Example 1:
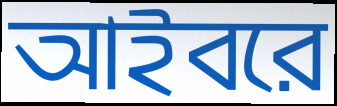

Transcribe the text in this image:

আইবরে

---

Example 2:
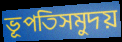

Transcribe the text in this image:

ভূপতিসমুদয়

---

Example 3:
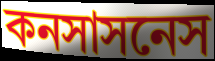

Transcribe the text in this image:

কনসাসনেস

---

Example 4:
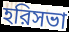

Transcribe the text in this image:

হরিসভা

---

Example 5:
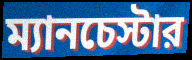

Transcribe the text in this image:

ম্যানচেস্টার